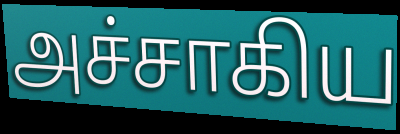
அச்சாகிய